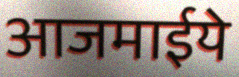
आजमाईये